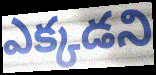
ఎక్కడని